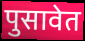
पुसावेत